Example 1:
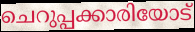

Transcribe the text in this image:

ചെറുപ്പക്കാരിയോട്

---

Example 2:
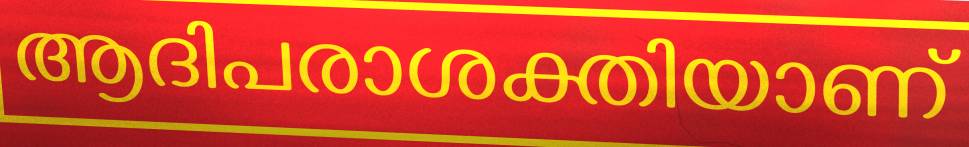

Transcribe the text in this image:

ആദിപരാശക്തിയാണ്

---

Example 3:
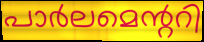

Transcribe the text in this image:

പാർലമെന്ററി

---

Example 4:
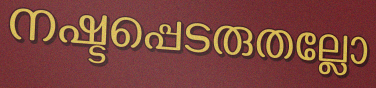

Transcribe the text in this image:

നഷ്ടപ്പെടരുതല്ലോ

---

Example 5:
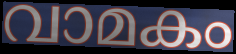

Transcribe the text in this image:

വാമകം